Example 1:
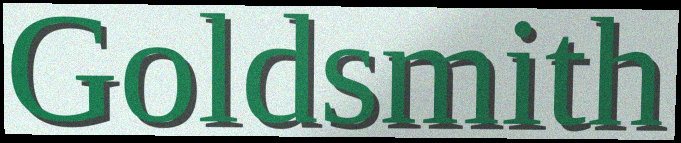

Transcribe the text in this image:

Goldsmith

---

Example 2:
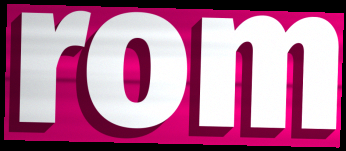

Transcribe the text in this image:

rom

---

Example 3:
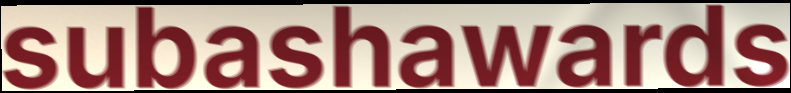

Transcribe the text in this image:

subashawards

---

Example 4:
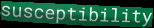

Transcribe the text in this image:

susceptibility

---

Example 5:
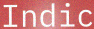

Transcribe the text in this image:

Indic